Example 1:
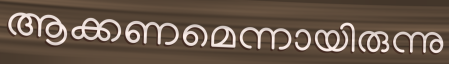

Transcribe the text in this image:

ആക്കണമെന്നായിരുന്നു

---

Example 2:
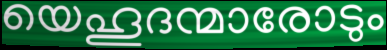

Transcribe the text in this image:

യെഹൂദന്മാരോടും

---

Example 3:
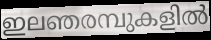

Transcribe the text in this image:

ഇലഞരമ്പുകളിൽ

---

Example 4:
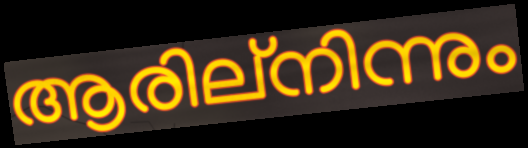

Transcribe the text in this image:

ആരില്നിന്നും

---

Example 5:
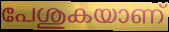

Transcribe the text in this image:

പേശുകയാണ്